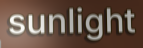
sunlight